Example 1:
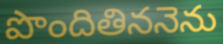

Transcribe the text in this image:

పొందితిననెను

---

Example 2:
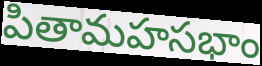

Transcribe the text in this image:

పితామహసభాం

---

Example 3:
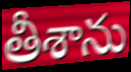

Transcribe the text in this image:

తీశాను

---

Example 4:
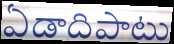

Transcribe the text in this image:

ఏడాదిపాటు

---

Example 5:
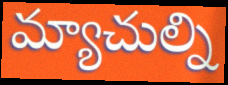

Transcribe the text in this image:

మ్యాచుల్ని